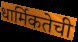
धार्मिकतेची